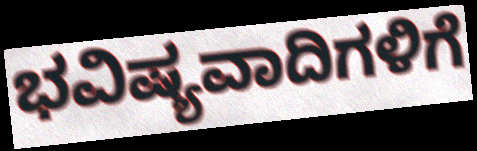
ಭವಿಷ್ಯವಾದಿಗಳಿಗೆ